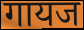
गायज